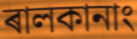
ৰালকানাং